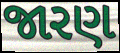
જારણ